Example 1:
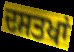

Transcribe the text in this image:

ਦਸਤਖਾਂ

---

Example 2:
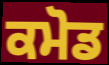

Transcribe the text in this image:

ਕਮੋਡ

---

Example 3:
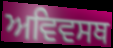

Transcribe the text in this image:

ਅਵਿਵਸਥ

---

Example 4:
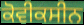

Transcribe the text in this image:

ਕੋਵੀਕਸੀਨ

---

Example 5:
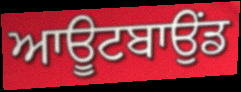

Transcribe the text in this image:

ਆਊਟਬਾਉਂਡ